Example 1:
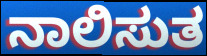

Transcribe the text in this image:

ನಾಲಿಸುತ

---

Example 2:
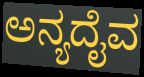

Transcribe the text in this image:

ಅನ್ಯದೈವ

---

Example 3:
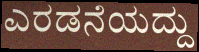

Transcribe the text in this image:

ಎರಡನೆಯದ್ದು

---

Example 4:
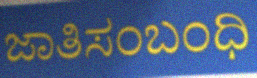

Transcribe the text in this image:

ಜಾತಿಸಂಬಂಧಿ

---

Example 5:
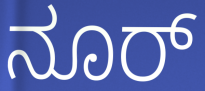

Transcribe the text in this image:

ನೂರ್